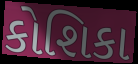
કોશિકા